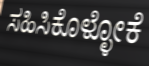
ಸಹಿಸಿಕೊಳ್ಳೋಕೆ